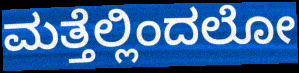
ಮತ್ತೆಲ್ಲಿಂದಲೋ